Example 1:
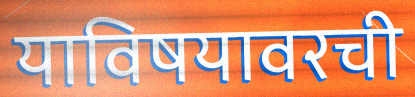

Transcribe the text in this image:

याविषयावरची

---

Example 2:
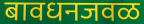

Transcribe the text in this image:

बावधनजवळ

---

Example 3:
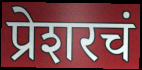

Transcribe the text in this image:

प्रेशरचं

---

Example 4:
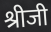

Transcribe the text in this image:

श्रीजी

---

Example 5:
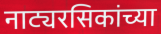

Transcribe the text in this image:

नाट्यरसिकांच्या